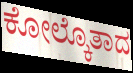
ಕೋಲ್ಕೊತಾದ